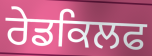
ਰੇਡਕਿਲਫ